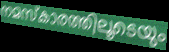
നമസ്കാരത്തിലൂടെയും